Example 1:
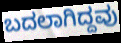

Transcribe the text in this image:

ಬದಲಾಗಿದ್ದವು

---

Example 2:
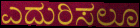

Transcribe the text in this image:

ಎದುರಿಸಲೂ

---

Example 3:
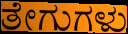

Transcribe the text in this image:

ತೇಗುಗಳು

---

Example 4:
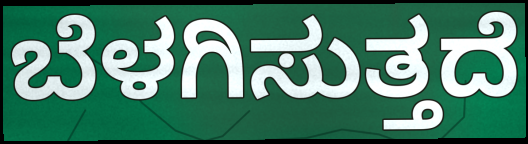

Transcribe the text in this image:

ಬೆಳಗಿಸುತ್ತದೆ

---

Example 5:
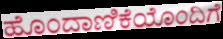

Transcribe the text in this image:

ಹೊಂದಾಣಿಕೆಯೊಂದಿಗೆ